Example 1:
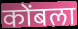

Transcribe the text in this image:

कोंबला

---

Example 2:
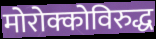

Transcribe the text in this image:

मोरोक्कोविरुद्ध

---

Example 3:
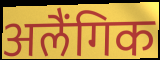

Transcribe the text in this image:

अलैंगिक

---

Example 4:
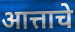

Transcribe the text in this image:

आत्ताचे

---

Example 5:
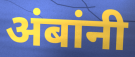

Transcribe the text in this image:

अंबांनी